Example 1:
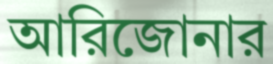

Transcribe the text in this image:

আরিজোনার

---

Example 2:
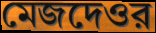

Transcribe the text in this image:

মেজদেওর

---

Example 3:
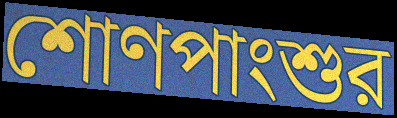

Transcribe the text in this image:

শোণপাংশুর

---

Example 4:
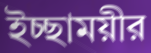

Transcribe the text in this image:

ইচ্ছাময়ীর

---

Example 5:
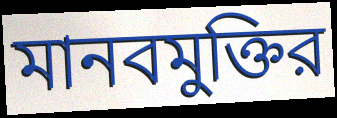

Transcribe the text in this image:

মানবমুক্তির